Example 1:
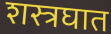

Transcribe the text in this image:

शस्त्रघात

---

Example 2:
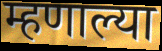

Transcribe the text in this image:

म्हणाल्या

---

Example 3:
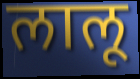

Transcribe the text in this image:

लालू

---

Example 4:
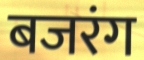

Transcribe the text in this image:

बजरंग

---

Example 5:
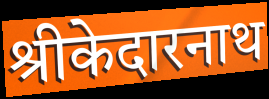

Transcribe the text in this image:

श्रीकेदारनाथ